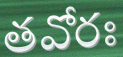
తవోరః